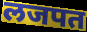
लजपत